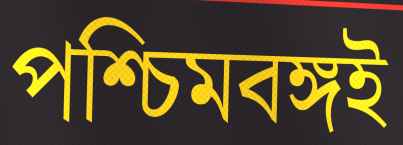
পশ্চিমবঙ্গই